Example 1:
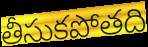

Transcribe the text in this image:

తీసుకపోతది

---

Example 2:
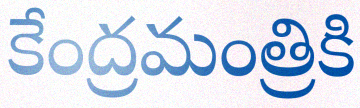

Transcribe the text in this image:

కేంద్రమంత్రికి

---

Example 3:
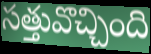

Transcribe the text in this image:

సత్తువొచ్చింది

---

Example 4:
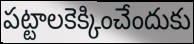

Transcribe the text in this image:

పట్టాలకెక్కించేందుకు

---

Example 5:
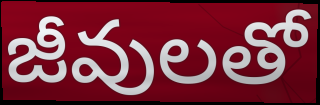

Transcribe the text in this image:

జీవులతో